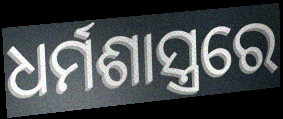
ଧର୍ମଶାସ୍ତ୍ରରେ